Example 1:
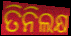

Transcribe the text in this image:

ତିନିଲକ୍ଷ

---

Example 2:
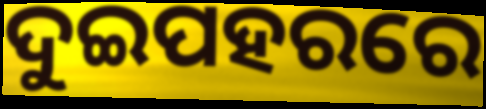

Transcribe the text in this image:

ଦୁଇପହରରେ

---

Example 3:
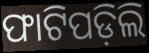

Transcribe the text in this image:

ଫାଟିପଡ଼ିଲି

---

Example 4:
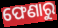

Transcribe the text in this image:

ଫେଣାରୁ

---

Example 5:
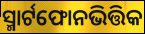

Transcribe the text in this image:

ସ୍ମାର୍ଟଫୋନଭିତ୍ତିକ